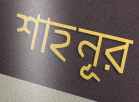
শাহনূর